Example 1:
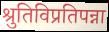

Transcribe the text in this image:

श्रुतिविप्रतिपन्ना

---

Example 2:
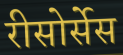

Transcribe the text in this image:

रीसोर्सेस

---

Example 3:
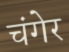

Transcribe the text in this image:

चंगेर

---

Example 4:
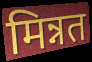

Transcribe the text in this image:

मिन्नत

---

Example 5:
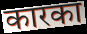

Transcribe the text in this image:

कारका